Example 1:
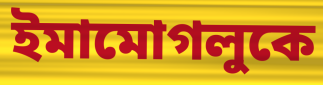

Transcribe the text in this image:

ইমামোগলুকে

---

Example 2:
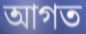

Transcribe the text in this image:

আগত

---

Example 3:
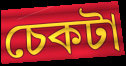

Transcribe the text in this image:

চেকটা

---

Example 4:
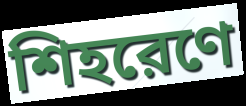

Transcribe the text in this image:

শিহরেণে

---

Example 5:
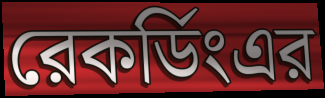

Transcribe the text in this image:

রেকর্ডিংএর